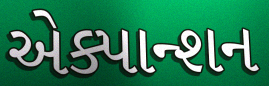
એક્પાન્શન